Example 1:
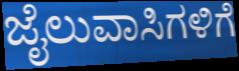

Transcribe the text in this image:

ಜೈಲುವಾಸಿಗಳಿಗೆ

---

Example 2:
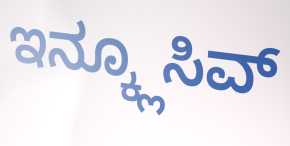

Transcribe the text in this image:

ಇನ್ಕ್ಲೂಸಿವ್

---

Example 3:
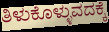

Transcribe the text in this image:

ತಿಳುಕೊಳ್ಳುವದಕ್ಕೆ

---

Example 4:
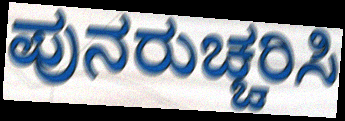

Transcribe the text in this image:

ಪುನರುಚ್ಚರಿಸಿ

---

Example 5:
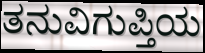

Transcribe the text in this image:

ತನುವಿಗುಪ್ತಿಯ